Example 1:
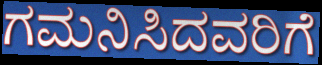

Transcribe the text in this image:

ಗಮನಿಸಿದವರಿಗೆ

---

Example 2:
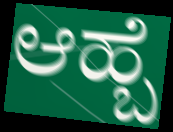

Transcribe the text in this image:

ಆಹ್ಬೆ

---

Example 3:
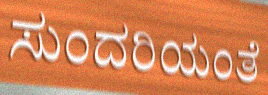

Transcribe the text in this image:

ಸುಂದರಿಯಂತೆ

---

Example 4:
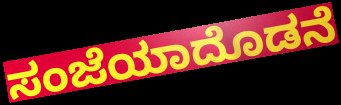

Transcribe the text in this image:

ಸಂಜೆಯಾದೊಡನೆ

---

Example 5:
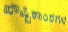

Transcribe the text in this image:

ಪೌಷ್ಟಿಕಾಂಶಗಳ